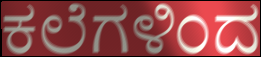
ಕಲೆಗಳಿಂದ